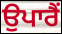
ਉਪਾਰੈਂ